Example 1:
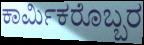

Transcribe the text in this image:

ಕಾರ್ಮಿಕರೊಬ್ಬರ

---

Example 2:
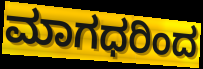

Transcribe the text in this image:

ಮಾಗಧರಿಂದ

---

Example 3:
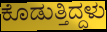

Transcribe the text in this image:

ಕೊಡುತ್ತಿದ್ದಳು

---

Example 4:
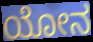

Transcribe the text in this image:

ಯೋನ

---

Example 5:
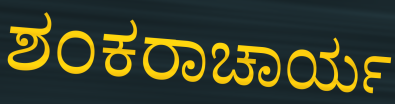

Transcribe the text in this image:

ಶಂಕರಾಚಾರ್ಯ